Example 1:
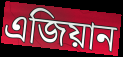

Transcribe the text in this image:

এজিয়ান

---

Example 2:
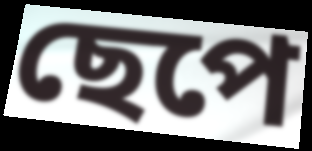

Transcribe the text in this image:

ছেপে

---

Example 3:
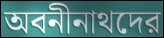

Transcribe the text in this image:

অবনীনাথদের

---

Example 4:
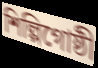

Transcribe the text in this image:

শিল্পিগোষ্ঠী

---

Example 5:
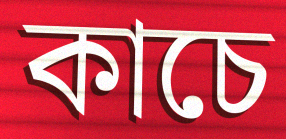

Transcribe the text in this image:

কাচে